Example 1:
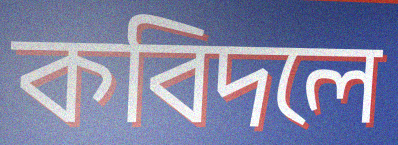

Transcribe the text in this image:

কবিদলে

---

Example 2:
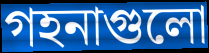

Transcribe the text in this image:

গহনাগুলো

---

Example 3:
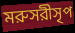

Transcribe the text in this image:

মরুসরীসৃপ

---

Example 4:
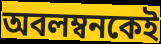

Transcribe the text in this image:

অবলম্বনকেই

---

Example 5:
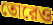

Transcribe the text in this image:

তোরেও